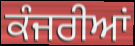
ਕੰਜਰੀਆਂ